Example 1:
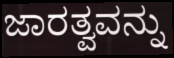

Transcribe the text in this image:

ಜಾರತ್ವವನ್ನು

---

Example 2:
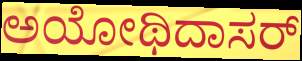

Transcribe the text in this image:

ಅಯೋಥಿದಾಸರ್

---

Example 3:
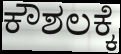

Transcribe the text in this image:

ಕೌಶಲಕ್ಕೆ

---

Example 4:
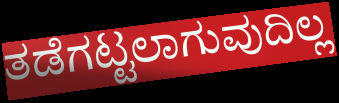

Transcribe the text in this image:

ತಡೆಗಟ್ಟಲಾಗುವುದಿಲ್ಲ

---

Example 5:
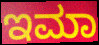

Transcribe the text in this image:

ಇಮಾ